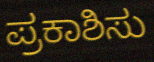
ಪ್ರಕಾಶಿಸು